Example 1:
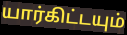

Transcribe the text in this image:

யார்கிட்டயும்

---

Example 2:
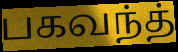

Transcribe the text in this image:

பகவந்த்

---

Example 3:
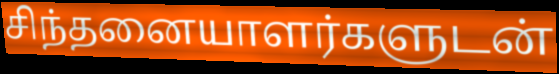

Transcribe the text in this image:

சிந்தனையாளர்களுடன்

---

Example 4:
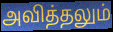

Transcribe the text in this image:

அவித்தலும்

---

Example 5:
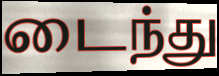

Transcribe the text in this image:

டைந்து